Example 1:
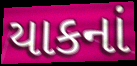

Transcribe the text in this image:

યાકનાં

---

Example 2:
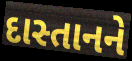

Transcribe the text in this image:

દાસ્તાનને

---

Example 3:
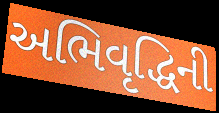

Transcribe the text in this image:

અભિવૃદ્ધિની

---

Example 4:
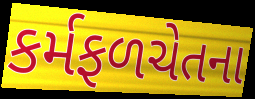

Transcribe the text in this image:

કર્મફળચેતના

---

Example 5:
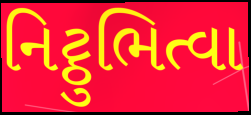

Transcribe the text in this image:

નિટ્ઠુભિત્વા